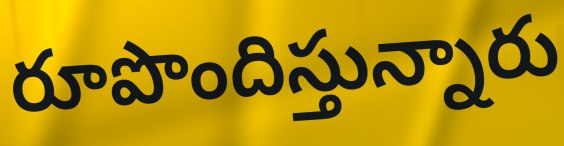
రూపొందిస్తున్నారు